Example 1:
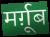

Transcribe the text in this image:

मर्ग़ूब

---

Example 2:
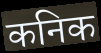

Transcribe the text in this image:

कनिक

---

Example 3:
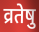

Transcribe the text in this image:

व्रतेषु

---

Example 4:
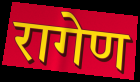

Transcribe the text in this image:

रागेण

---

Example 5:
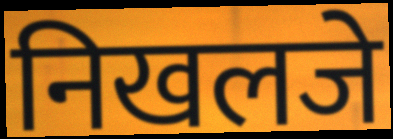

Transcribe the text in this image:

निखलजे